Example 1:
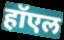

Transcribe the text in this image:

हॉएल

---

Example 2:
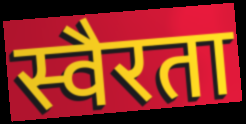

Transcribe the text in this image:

स्वैरता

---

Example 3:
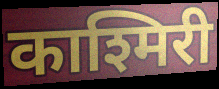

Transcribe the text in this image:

काश्मिरी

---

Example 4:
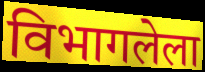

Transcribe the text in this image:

विभागलेला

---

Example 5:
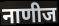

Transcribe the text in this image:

नाणीज